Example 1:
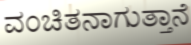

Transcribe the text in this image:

ವಂಚಿತನಾಗುತ್ತಾನೆ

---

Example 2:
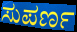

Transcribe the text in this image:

ಸುಪರ್ಣ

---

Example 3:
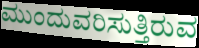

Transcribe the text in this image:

ಮುಂದುವರಿಸುತ್ತಿರುವ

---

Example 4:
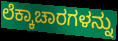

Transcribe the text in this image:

ಲೆಕ್ಕಾಚಾರಗಳನ್ನು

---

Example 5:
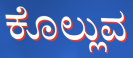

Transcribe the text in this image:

ಕೊಲ್ಲುವ